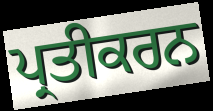
ਪ੍ਰਤੀਕਰਨ